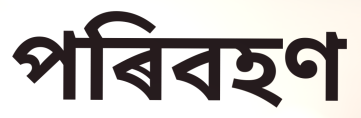
পৰিবহণ